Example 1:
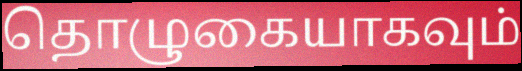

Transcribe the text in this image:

தொழுகையாகவும்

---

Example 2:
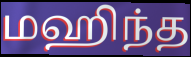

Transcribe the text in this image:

மஹிந்த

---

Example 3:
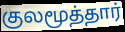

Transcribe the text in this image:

குலமூத்தார்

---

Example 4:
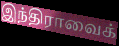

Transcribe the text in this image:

இந்திராவைக்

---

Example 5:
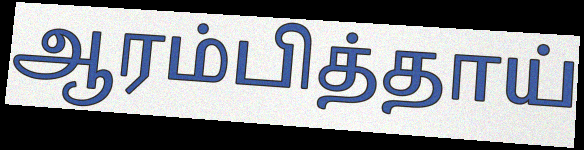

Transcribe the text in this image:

ஆரம்பித்தாய்